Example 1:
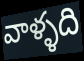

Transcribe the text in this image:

వాళ్ళది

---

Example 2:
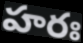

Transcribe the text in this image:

హరః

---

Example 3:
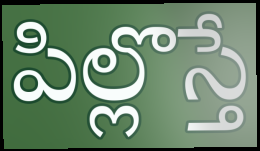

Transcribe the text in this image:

పిల్లొస్తే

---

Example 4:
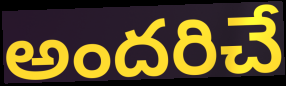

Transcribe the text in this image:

అందరిచే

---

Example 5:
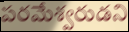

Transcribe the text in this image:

పరమేశ్వరుడని